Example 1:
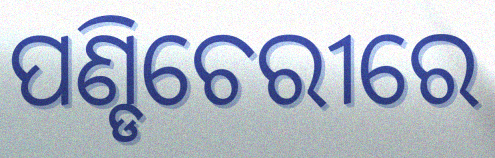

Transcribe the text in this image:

ପଣ୍ଡିଚେରୀରେ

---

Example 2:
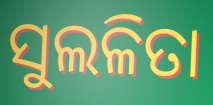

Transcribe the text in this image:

ସୁଲଳିତା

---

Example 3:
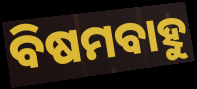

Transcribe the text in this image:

ବିଷମବାହୁ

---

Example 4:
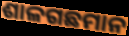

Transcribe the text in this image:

ଶାଳଗଛମାନ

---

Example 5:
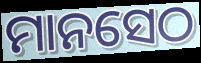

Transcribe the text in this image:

ମାନସେଠ